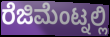
ರೆಜಿಮೆಂಟ್ನಲ್ಲಿ